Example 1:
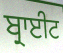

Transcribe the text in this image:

ਬ੍ਰਾਈਟ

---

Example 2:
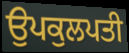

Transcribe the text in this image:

ਉਪਕੁਲਪਤੀ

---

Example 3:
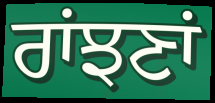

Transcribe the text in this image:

ਰਾਂਝਣਾਂ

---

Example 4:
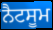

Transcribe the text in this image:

ਨੈਟਸੂਮ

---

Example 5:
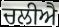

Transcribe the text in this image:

ਚਲੀਐ